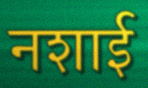
नशाई